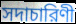
সদাচারিণী